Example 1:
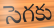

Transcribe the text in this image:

సెగకు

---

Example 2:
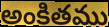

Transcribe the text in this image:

అంకితము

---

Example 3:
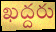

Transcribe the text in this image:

ఖద్దరు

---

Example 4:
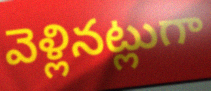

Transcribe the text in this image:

వెళ్లినట్లుగా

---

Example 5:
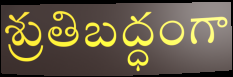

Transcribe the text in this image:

శ్రుతిబద్ధంగా